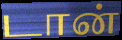
டான்